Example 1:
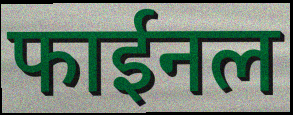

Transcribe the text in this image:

फाईनल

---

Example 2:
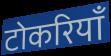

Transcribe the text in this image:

टोकरियाँ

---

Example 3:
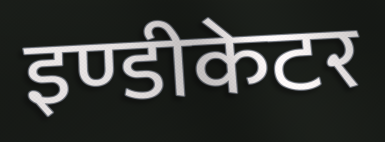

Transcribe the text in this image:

इण्डीकेटर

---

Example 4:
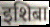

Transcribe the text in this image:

इशिबा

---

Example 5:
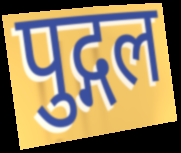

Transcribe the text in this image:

पुद्गल